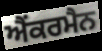
ਐਂਕਰਮੈਨ